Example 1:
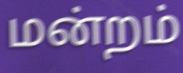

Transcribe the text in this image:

மன்றம்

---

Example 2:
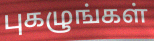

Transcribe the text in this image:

புகழுங்கள்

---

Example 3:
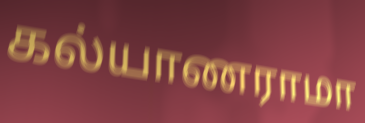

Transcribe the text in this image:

கல்யாணராமா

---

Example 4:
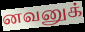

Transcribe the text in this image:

னவனுக்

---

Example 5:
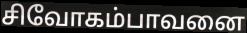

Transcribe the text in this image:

சிவோகம்பாவனை